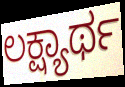
ಲಕ್ಷ್ಯಾರ್ಥ